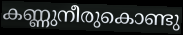
കണ്ണുനീരുകൊണ്ടു